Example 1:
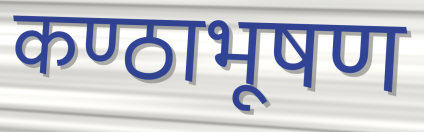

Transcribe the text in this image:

कण्ठाभूषण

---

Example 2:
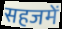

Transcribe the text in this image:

सहजमें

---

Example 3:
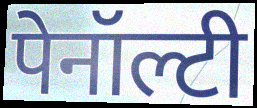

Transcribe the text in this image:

पेनॉल्टी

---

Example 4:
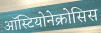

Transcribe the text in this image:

ऑस्टियोनेक्रोसिस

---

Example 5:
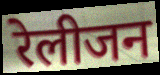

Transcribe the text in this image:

रेलीजन